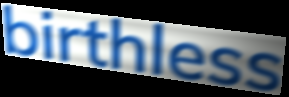
birthless